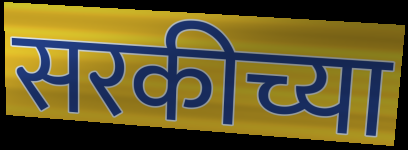
सरकीच्या